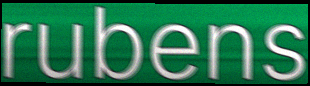
rubens